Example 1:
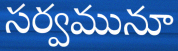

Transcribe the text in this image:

సర్వమునూ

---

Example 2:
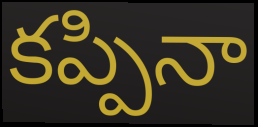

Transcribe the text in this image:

కప్పినా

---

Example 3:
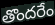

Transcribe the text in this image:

తొందరేం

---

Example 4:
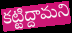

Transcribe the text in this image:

కట్టిద్దామని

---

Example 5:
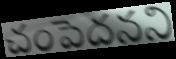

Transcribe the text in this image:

చంపెదనని